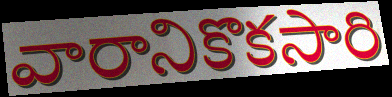
వారానికొకసారి